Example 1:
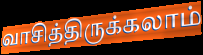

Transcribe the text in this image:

வாசித்திருக்கலாம்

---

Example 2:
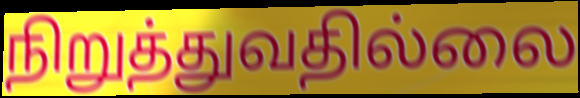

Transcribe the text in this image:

நிறுத்துவதில்லை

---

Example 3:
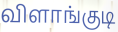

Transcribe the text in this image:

விளாங்குடி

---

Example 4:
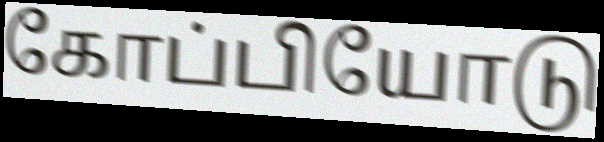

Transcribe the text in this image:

கோப்பியோடு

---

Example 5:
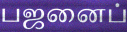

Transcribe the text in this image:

பஜனைப்